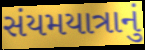
સંયમયાત્રાનું